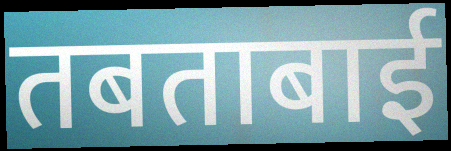
तबताबाई